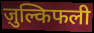
ज़ुल्किफली